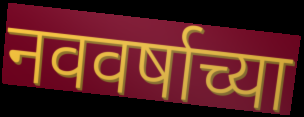
नववर्षाच्या